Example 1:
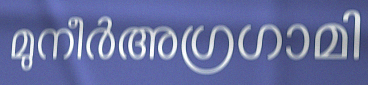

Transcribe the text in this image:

മുനീർഅഗ്രഗാമി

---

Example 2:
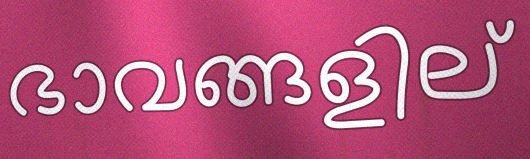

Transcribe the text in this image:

ഭാവങ്ങളില്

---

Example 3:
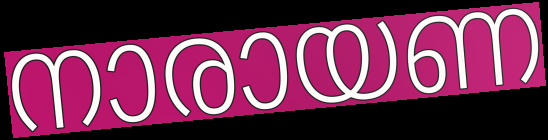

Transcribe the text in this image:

നാരായണ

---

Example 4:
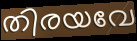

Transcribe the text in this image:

തിരയവേ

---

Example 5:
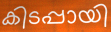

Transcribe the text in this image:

കിടപ്പായി